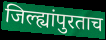
जिल्ह्यांपुरताच